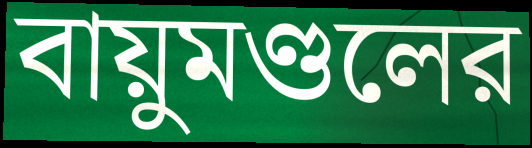
বায়ুমণ্ডলের